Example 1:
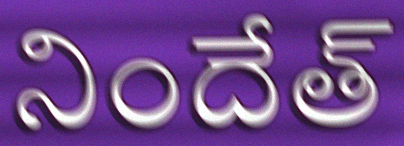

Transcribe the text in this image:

నిందేత్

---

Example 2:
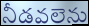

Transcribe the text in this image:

నీడవలెను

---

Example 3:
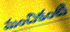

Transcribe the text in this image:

మంచికంటి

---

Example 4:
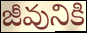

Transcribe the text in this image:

జీవునికి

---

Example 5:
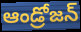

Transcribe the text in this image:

ఆండ్రోజన్